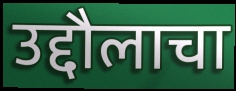
उद्दौलाचा